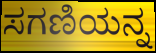
ಸಗಣಿಯನ್ನ